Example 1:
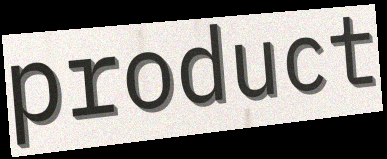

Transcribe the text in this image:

product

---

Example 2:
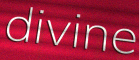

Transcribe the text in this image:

divine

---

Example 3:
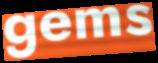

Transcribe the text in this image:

gems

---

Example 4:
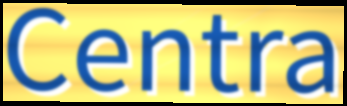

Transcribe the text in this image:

Centra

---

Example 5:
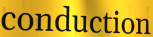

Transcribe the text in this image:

conduction